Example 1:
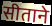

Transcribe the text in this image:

सीताने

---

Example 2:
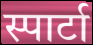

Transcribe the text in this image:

स्पार्टा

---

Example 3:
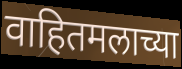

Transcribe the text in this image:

वाहितमलाच्या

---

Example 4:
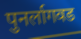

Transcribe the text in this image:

पुनर्लागवड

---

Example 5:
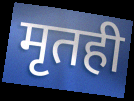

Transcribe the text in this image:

मृतही